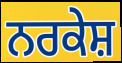
ਨਰਕੇਸ਼